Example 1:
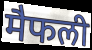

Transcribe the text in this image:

मैफली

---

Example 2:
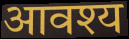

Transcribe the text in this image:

आवश्य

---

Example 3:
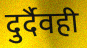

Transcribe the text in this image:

दुर्दैवही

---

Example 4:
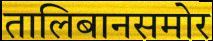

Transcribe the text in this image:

तालिबानसमोर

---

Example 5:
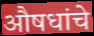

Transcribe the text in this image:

औषधांचे